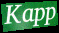
Kapp